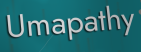
Umapathy